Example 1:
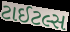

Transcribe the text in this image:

ટાઈટલ્સ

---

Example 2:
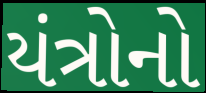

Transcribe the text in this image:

યંત્રોનો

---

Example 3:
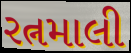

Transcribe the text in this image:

રત્નમાલી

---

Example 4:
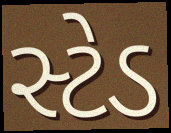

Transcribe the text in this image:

સ્ટેડ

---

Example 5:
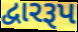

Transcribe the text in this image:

દ્વારરૂપ